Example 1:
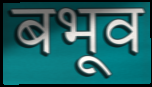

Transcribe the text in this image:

बभूव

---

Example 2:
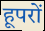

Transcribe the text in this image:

हूपरों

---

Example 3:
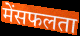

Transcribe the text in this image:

मेंसफलता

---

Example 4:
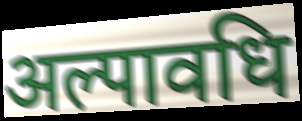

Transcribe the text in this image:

अल्पावधि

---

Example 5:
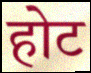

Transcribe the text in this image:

होट